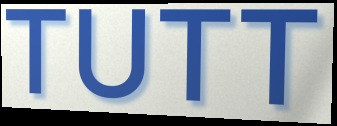
TUTT